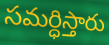
సమర్ధిస్తారు